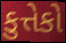
કુત્તેકો